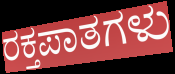
ರಕ್ತಪಾತಗಳು